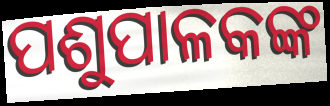
ପଶୁପାଳକଙ୍କ